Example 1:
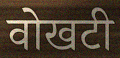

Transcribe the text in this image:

वोखटी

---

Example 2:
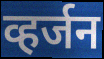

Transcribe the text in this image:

व्हर्जन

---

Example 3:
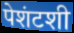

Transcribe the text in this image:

पेशंटशी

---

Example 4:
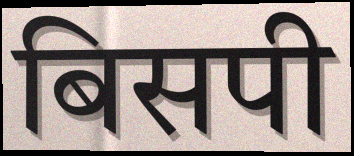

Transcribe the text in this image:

बिसपी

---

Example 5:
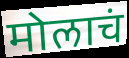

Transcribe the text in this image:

मोलाचं